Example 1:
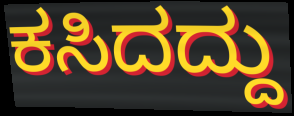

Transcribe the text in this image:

ಕಸಿದದ್ದು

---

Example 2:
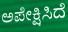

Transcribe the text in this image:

ಅಪೇಕ್ಷಿಸಿದೆ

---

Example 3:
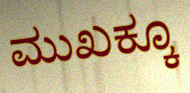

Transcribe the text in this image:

ಮುಖಕ್ಕೂ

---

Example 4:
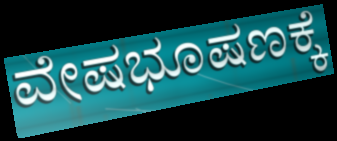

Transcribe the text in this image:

ವೇಷಭೂಷಣಕ್ಕೆ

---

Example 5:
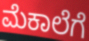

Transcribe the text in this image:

ಮೆಕಾಲೆಗೆ